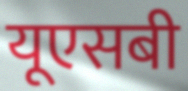
यूएसबी